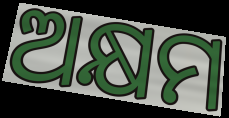
ଅକ୍ଷମ